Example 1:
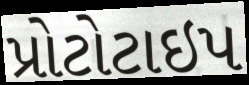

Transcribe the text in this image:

પ્રોટોટાઇપ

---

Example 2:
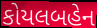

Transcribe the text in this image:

કોયલબહેન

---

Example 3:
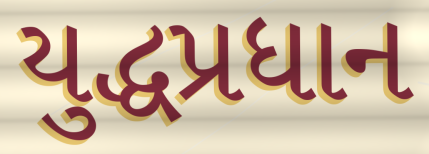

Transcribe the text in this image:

યુદ્ધપ્રધાન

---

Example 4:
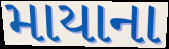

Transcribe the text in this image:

માયાના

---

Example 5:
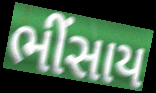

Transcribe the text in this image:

ભીંસાય